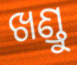
ଖଣ୍ଡୁ